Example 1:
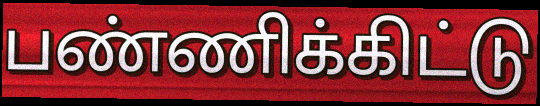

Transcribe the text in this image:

பண்ணிக்கிட்டு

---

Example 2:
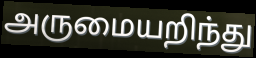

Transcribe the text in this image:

அருமையறிந்து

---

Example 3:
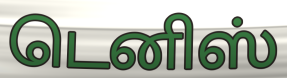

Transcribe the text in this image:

டெனிஸ்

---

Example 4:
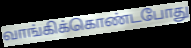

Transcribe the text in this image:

வாங்கிக்கொண்டபோது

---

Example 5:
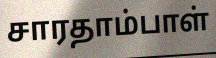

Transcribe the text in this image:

சாரதாம்பாள்